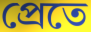
প্রেতে